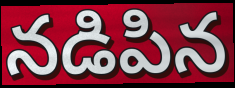
నడిపిన